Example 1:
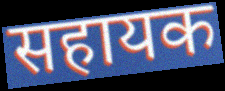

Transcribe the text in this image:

सहायक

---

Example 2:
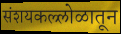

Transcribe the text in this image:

संशयकल्लोळातून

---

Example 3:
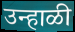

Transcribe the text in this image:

उन्हाळी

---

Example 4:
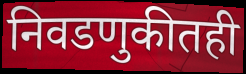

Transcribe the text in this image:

निवडणुकीतही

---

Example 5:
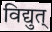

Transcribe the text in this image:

विद्युत्